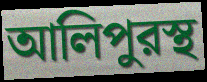
আলিপুরস্থ